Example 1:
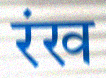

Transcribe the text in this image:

रंख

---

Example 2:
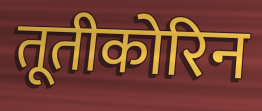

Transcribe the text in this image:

तूतीकोरिन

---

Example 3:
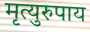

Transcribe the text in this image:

मृत्युरुपाय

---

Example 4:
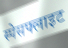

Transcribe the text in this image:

स्पेसफ्लाइट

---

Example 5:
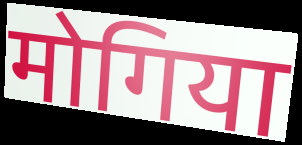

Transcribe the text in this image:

मोगिया